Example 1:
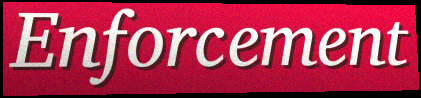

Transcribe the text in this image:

Enforcement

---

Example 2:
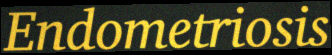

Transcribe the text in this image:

Endometriosis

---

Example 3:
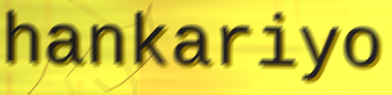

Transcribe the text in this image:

hankariyo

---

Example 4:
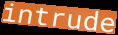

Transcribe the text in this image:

intrude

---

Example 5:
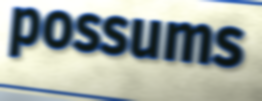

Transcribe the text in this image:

possums